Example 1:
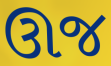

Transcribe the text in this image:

ઊજ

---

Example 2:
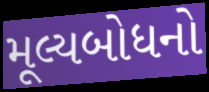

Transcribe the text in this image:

મૂલ્યબોધનો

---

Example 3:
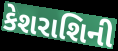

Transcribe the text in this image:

કેશરાશિની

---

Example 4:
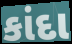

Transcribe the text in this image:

કાંદા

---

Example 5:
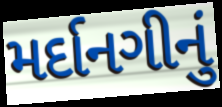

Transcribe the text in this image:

મર્દાનગીનું